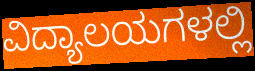
ವಿದ್ಯಾಲಯಗಳಲ್ಲಿ